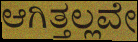
ಆಗಿತ್ತಲ್ಲವೇ